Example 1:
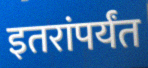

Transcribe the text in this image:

इतरांपर्यंत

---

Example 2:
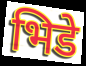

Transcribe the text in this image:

भिडे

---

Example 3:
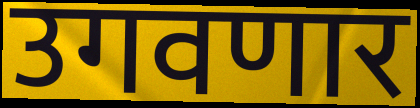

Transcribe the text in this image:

उगवणार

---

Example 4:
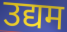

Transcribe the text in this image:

उद्यम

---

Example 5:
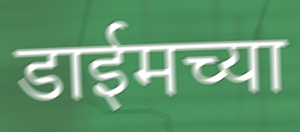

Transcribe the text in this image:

डाईमच्या